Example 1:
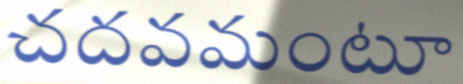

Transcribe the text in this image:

చదవమంటూ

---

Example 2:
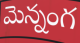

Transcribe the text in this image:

మెన్నంగ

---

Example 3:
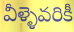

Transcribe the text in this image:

వీళ్ళెవరికీ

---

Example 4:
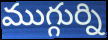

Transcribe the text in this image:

ముగ్గుర్ని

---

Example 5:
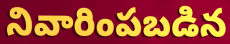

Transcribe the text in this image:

నివారింపబడిన